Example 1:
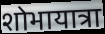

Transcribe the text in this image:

शोभायात्रा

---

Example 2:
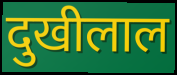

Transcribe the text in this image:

दुखीलाल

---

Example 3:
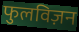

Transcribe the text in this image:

फुलविज़न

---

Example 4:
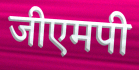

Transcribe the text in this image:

जीएमपी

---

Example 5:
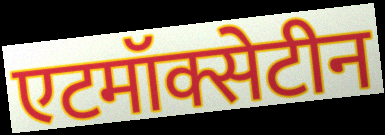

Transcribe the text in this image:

एटमॉक्सेटीन